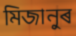
মিজানুৰ